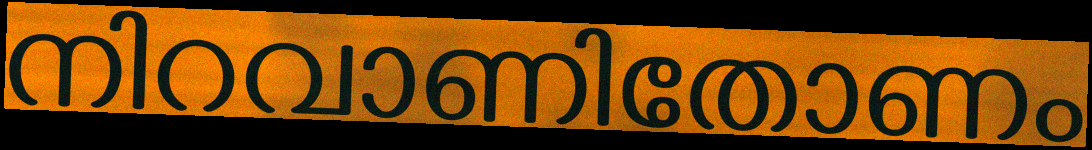
നിറവാണിതോണം